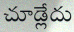
చూడ్లేదు